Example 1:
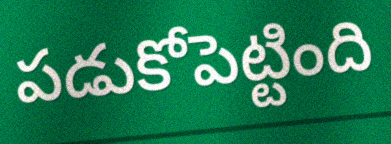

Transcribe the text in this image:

పడుకోపెట్టింది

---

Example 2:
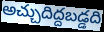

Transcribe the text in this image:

అచ్చుదిద్దబడ్డది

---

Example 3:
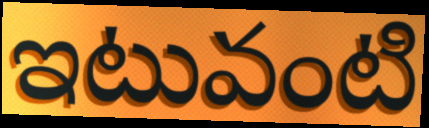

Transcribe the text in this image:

ఇటువంటి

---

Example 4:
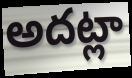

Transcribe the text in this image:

అదట్లా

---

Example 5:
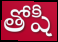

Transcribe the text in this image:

తోషీ